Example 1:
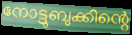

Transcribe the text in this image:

നോട്ടുബുക്കിന്റെ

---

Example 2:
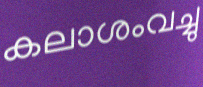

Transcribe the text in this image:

കലാശംവച്ചു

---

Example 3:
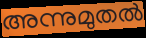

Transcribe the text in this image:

അന്നുമുതൽ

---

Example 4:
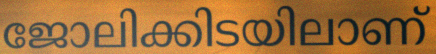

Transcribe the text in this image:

ജോലിക്കിടയിലാണ്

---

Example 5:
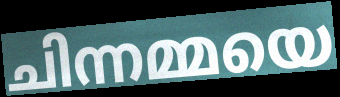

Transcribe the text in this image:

ചിന്നമ്മയെ